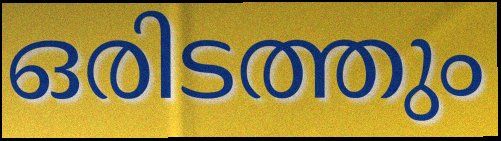
ഒരിടത്തും